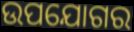
ଉପଯୋଗର